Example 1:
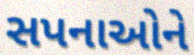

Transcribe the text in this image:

સપનાઓને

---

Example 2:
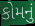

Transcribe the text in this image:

કોમનું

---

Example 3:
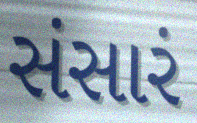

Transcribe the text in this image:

સંસારં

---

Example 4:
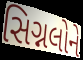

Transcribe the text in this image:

સિગ્નલોને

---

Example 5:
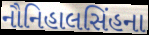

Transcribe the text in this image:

નૌનિહાલસિંહના